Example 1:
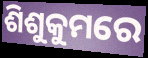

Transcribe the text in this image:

ଶିଶୁକୁମରେ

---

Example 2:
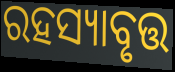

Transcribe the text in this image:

ରହସ୍ୟାବୃତ୍ତ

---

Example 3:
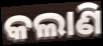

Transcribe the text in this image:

କଲାଣି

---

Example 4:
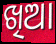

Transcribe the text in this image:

ଖିଆ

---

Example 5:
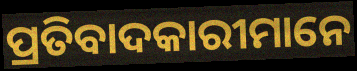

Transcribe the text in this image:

ପ୍ରତିବାଦକାରୀମାନେ